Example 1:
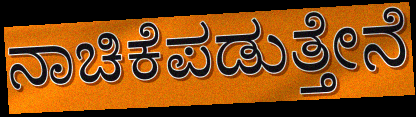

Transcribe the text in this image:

ನಾಚಿಕೆಪಡುತ್ತೇನೆ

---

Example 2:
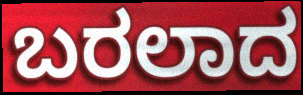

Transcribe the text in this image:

ಬರಲಾದ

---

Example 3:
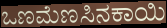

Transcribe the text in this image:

ಒಣಮೆಣಸಿನಕಾಯಿ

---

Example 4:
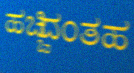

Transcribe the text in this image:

ಹಚ್ಚಿದಂತಹ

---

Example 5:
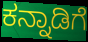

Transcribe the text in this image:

ಕನ್ನಾಡಿಗೆ